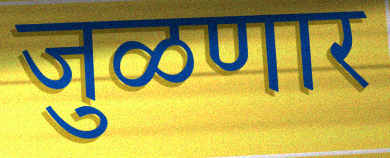
जुळणार